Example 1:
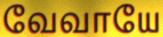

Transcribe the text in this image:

வேவாயே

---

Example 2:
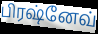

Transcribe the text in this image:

பிரஷ்னேவ்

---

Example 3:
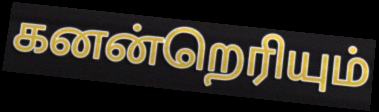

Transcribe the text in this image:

கனன்றெரியும்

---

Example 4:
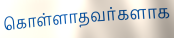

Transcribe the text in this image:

கொள்ளாதவர்களாக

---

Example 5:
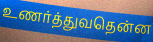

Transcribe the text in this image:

உணர்த்துவதென்ன